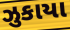
ઝુકાયા